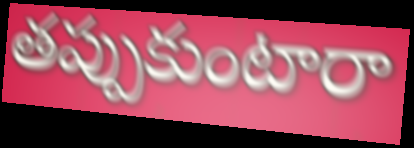
తప్పుకుంటారా